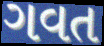
ગવત